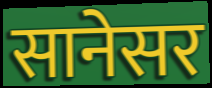
सानेसर